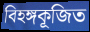
বিহঙ্গকূজিত